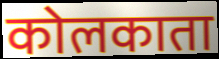
कोलकाता